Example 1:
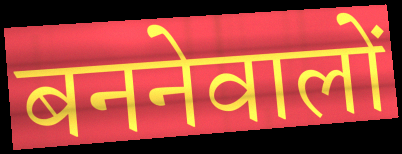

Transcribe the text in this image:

बननेवालों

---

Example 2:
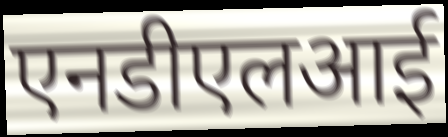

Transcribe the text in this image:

एनडीएलआई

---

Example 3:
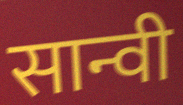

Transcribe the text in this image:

सान्वी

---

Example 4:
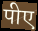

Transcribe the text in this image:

पीए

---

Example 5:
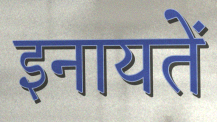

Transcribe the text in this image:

इनायतें